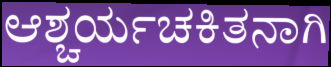
ಆಶ್ಚರ್ಯಚಕಿತನಾಗಿ